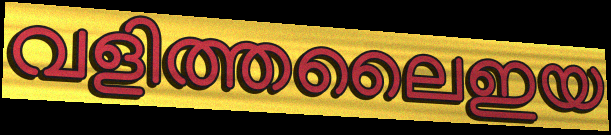
വളിത്തലൈഇയ